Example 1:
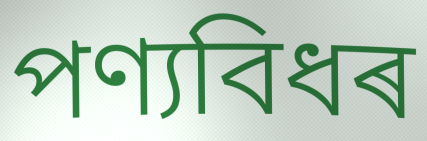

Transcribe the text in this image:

পণ্যবিধৰ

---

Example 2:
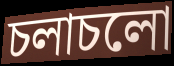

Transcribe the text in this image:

চলাচলো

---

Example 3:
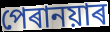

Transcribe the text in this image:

পেৰানয়াৰ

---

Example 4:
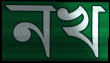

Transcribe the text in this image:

নখ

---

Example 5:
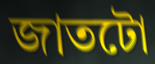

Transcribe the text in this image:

জাতটো